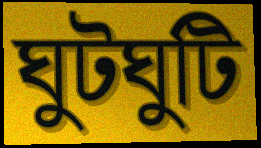
ঘুটঘুটি